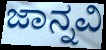
ಜಾನ್ನವಿ